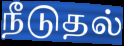
நீடுதல்